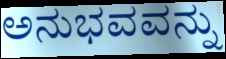
ಅನುಭವವನ್ನು